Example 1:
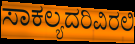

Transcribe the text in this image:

ಸಾಕಲ್ಯದರಿವಿರಲಿ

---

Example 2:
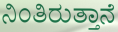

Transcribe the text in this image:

ನಿಂತಿರುತ್ತಾನೆ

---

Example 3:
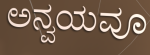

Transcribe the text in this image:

ಅನ್ವಯವೂ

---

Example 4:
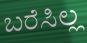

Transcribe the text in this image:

ಬರೆಸಿಲ್ಲ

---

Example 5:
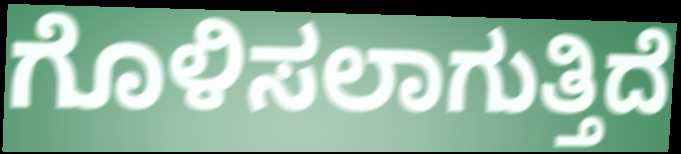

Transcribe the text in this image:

ಗೊಳಿಸಲಾಗುತ್ತಿದೆ